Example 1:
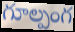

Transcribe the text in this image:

గూల్పంగ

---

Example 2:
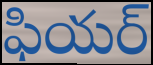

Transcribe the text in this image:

ఫియర్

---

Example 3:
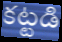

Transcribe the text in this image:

కట్టడి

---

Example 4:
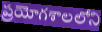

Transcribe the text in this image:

ప్రయోగశాలలోని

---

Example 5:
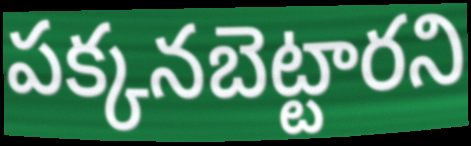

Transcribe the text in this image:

పక్కనబెట్టారని